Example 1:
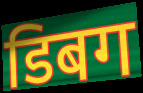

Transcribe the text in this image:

डिबग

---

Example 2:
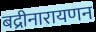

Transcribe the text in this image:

बद्रीनारायणन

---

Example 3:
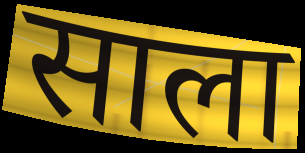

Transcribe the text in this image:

साला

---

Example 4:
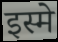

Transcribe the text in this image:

इस्मे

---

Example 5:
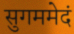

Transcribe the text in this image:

सुगममेदं